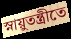
স্নায়ুতন্ত্রীতে